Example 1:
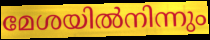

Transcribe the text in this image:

മേശയിൽനിന്നും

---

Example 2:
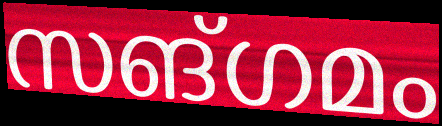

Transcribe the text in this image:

സങ്ഗമം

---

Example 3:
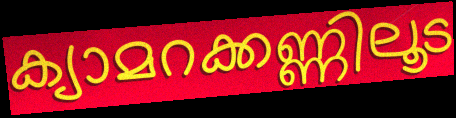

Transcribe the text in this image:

ക്യാമറക്കണ്ണിലൂട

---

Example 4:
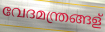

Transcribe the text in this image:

വേദമന്ത്രങ്ങള്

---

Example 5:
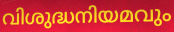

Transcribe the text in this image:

വിശുദ്ധനിയമവും